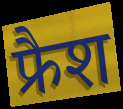
फ्रैश